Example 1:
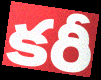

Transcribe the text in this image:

కరీ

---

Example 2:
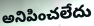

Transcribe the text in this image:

అనిపించలేదు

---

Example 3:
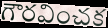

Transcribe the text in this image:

గౌరవించక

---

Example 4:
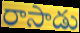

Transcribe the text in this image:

రాసాడు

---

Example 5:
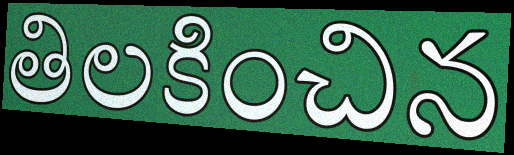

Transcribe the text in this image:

తిలకించిన